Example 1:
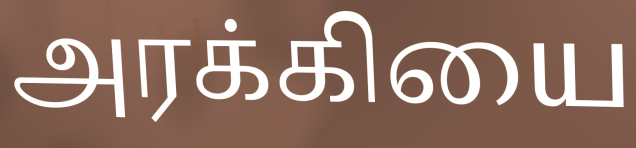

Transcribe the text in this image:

அரக்கியை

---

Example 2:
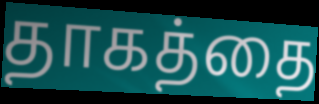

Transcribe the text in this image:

தாகத்தை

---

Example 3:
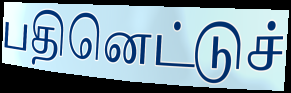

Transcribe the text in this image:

பதினெட்டுச்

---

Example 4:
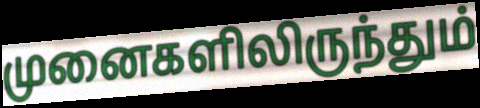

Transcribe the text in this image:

முனைகளிலிருந்தும்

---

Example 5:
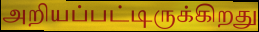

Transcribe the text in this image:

அறியப்பட்டிருக்கிறது